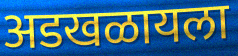
अडखळायला